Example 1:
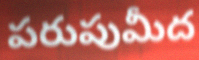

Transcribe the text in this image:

పరుపుమీద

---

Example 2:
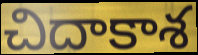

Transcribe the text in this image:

చిదాకాశ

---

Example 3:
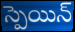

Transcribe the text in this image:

స్పెయిన్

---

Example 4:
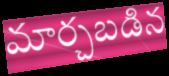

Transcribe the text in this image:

మార్చబడిన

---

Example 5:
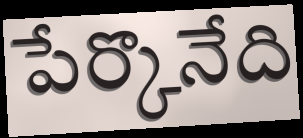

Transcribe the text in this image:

పేర్కొనేది